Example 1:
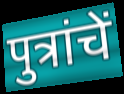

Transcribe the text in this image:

पुत्रांचें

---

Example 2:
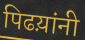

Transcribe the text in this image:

पिढय़ांनी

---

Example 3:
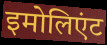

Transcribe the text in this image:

इमोलिएंट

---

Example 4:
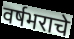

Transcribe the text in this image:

वर्षभराचे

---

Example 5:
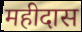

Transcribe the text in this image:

महीदास